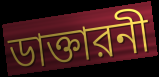
ডাক্তারনী